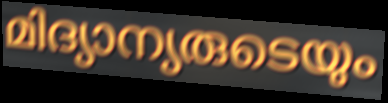
മിദ്യാന്യരുടെയും